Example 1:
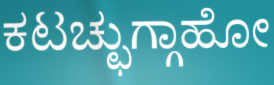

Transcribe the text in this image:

ಕಟಚ್ಛುಗ್ಗಾಹೋ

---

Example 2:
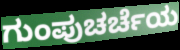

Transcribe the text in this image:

ಗುಂಪುಚರ್ಚೆಯ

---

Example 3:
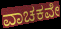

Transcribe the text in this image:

ವಾಚಕವೇ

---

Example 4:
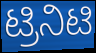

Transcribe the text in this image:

ಟ್ರಿನಿಟಿ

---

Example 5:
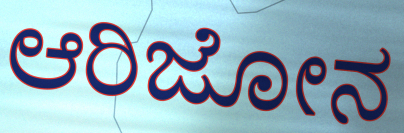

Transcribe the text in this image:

ಆರಿಜೋನ